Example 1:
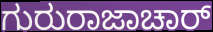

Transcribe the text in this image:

ಗುರುರಾಜಾಚಾರ್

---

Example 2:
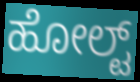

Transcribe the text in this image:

ಹೋಲ್ಟ್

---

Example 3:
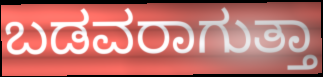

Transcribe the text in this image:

ಬಡವರಾಗುತ್ತಾ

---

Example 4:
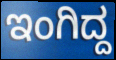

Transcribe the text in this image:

ಇಂಗಿದ್ದ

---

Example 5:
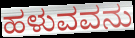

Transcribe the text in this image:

ಹಳುವವನು